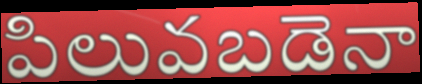
పిలువబడెనా